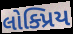
લોક્પ્રિય